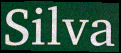
Silva